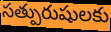
సత్పురుషులకు